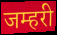
जम्हरी